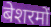
बेशरमों